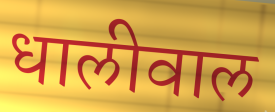
धालीवाल